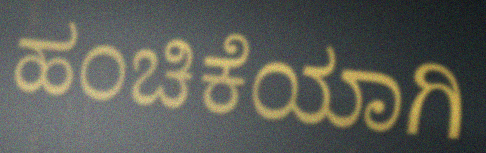
ಹಂಚಿಕೆಯಾಗಿ